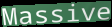
Massive